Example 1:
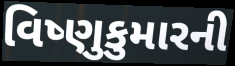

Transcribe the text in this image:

વિષ્ણુકુમારની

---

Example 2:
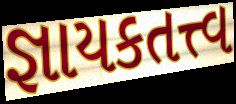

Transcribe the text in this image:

જ્ઞાયકતત્ત્વ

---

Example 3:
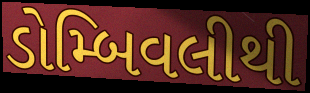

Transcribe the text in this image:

ડોમ્બિવલીથી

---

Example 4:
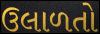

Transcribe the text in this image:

ઉલાળતો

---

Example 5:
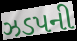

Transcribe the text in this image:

ઝડપની